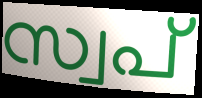
സ്വപ്